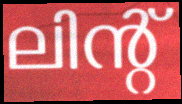
ലിന്റ്